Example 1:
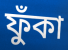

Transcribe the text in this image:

ফুঁকা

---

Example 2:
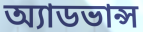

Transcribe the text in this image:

অ্যাডভান্স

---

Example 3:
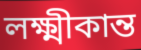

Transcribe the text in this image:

লক্ষ্মীকান্ত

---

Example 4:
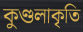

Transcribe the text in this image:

কুণ্ডলাকৃতি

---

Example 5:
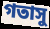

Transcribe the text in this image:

গতাসু